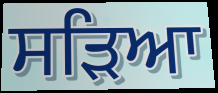
ਸੜਿਆ